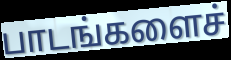
பாடங்களைச்